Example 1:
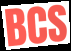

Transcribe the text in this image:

BCS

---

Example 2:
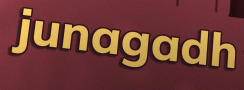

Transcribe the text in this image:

junagadh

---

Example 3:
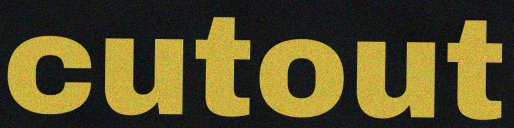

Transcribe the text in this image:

cutout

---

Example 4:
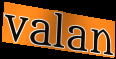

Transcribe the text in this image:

valan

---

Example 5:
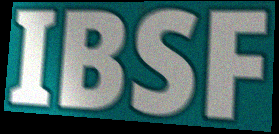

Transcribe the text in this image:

IBSF